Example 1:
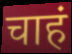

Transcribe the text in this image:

चाहं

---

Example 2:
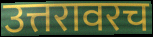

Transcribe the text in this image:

उत्तरावरच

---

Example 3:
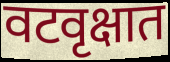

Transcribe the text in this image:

वटवृक्षात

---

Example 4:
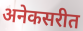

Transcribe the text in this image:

अनेकसरीत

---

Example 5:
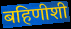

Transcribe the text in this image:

बहिणीशी